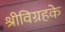
श्रीविग्रहके